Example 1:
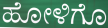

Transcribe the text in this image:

ಹೋಳಿಗೊ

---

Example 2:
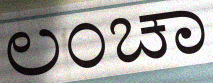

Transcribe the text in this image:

ಲಂಚಾ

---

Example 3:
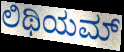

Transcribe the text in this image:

ಲಿಥಿಯಮ್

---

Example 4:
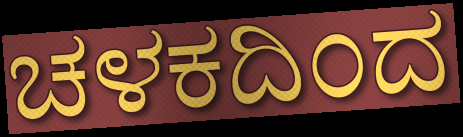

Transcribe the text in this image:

ಚಳಕದಿಂದ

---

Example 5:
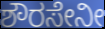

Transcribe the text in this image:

ಶೌರಸೇನೀ